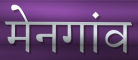
मेनगांव